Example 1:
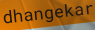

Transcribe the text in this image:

dhangekar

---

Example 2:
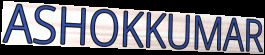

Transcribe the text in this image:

ASHOKKUMAR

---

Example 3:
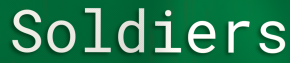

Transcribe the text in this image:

Soldiers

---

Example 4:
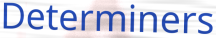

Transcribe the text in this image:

Determiners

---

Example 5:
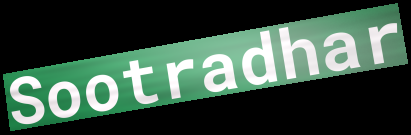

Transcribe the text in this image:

Sootradhar